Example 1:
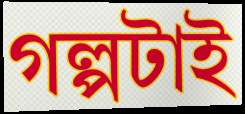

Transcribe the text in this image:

গল্পটাই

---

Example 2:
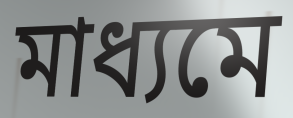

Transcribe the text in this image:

মাধ্যমে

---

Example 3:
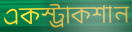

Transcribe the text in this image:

একস্ট্রাকশান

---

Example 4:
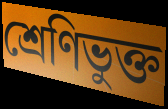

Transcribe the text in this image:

শ্রেণিভুক্ত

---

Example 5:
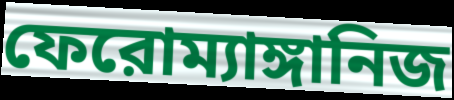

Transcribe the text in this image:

ফেরোম্যাঙ্গানিজ